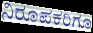
ನಿರೂಪಕರಿಗೂ